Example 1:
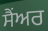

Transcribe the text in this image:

ਸੈਂਅਰ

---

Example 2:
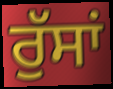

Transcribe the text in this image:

ਰੁੱਸਾਂ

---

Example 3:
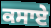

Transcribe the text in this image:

ਕਸਾਏ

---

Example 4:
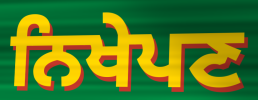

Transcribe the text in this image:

ਨਿਖੇਪਣ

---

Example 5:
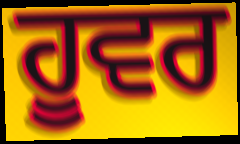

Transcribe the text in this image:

ਹੂਵਰ